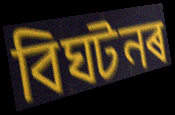
বিঘটনৰ